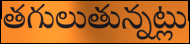
తగులుతున్నట్లు